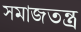
সমাজতন্ত্র